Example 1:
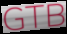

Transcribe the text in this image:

GTB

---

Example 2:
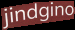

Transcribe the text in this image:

jindgino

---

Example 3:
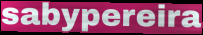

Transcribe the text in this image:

sabypereira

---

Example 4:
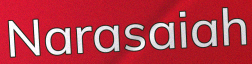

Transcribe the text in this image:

Narasaiah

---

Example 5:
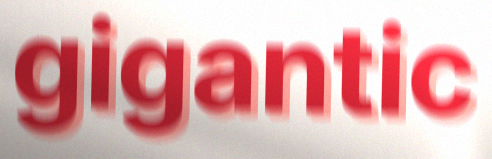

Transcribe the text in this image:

gigantic